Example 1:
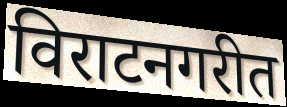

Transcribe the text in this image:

विराटनगरीत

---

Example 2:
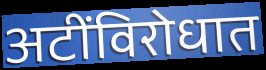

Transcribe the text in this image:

अटींविरोधात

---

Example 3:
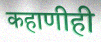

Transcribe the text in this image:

कहाणीही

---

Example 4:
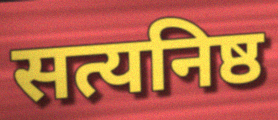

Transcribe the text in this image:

सत्यनिष्ठ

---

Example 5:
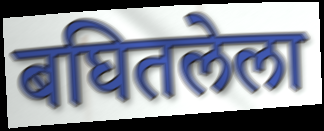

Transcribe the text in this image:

बघितलेला